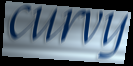
curvy